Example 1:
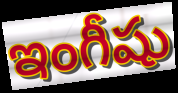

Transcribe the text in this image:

ఇంగీషు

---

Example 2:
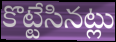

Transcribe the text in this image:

కొట్టేసినట్లు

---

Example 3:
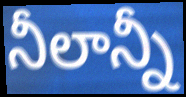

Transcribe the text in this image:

నీలాన్నీ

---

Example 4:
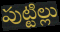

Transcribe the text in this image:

పుట్టిల్లు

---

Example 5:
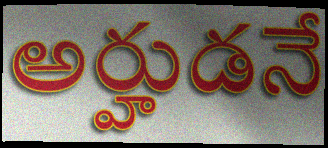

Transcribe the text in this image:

అర్హుడనే